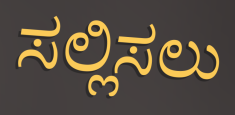
ಸಲ್ಲಿಸಲು